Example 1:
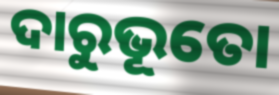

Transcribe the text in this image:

ଦାରୁଭୂତୋ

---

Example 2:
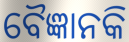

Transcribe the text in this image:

ବୈଜ୍ଞାନକି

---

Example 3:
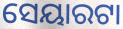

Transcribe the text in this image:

ସେୟାରଟା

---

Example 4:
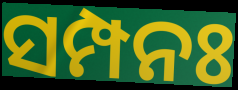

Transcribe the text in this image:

ସମ୍ପନଃ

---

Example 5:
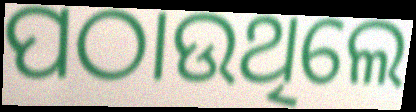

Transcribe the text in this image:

ପଠାଉଥିଲେ